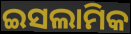
ଇସଲାମିକ